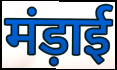
मंड़ाई